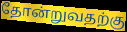
தோன்றுவதற்கு